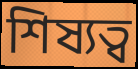
শিষ্যত্ব